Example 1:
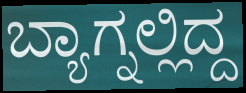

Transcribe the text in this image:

ಬ್ಯಾಗ್ನಲ್ಲಿದ್ದ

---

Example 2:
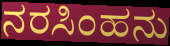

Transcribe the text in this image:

ನರಸಿಂಹನು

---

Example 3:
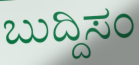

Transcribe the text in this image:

ಬುದ್ದಿಸಂ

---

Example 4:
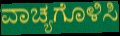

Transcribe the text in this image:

ವಾಚ್ಯಗೊಳಿಸಿ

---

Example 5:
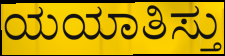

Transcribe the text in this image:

ಯಯಾತಿಸ್ತು